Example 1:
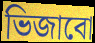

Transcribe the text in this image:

ভিজাবো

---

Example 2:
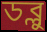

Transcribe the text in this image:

ডব্লু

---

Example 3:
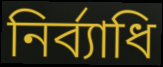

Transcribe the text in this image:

নির্ব্যাধি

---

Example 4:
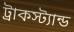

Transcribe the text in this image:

ট্রাকস্ট্যান্ড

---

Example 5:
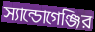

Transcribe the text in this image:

স্যান্ডোগেঞ্জির